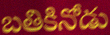
బతికినోడు